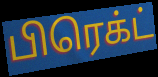
பிரெக்ட்